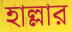
হাল্লার